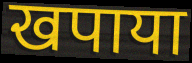
खपाया